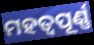
ମହତ୍ଵପୂର୍ଣ୍ଣ